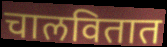
चालवितात